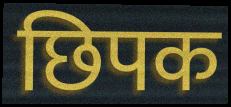
छिपक